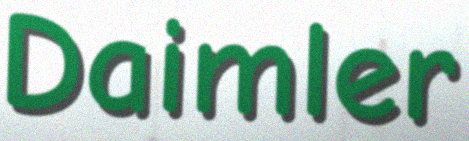
Daimler